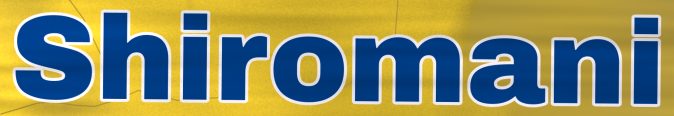
Shiromani